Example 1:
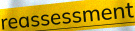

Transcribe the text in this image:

reassessment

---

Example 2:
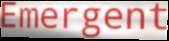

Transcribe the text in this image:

Emergent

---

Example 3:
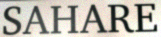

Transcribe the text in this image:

SAHARE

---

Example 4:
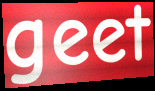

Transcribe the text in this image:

geet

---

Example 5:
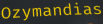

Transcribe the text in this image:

Ozymandias